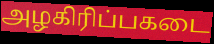
அழகிரிப்பகடை